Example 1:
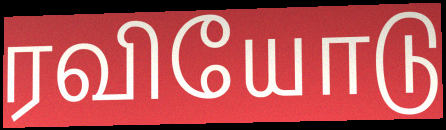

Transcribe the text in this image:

ரவியோடு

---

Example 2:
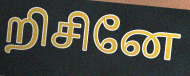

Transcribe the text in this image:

றிசினே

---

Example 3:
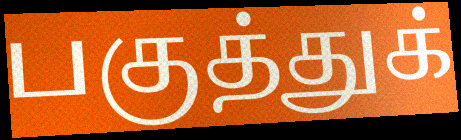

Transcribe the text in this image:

பகுத்துக்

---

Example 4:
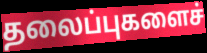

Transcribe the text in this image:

தலைப்புகளைச்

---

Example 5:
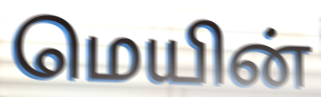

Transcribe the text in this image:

மெயின்